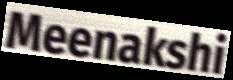
Meenakshi